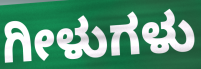
ಗೀಳುಗಳು